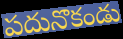
పదునొకండు